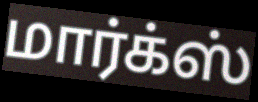
மார்க்ஸ்